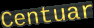
Centuar